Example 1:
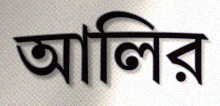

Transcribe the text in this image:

আলির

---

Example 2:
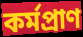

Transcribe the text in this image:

কর্মপ্রাণ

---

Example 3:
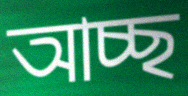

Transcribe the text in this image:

আচ্ছ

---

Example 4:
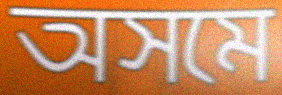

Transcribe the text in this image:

অসমে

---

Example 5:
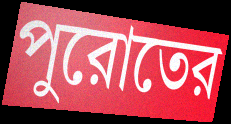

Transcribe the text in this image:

পুরোতের